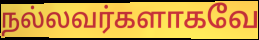
நல்லவர்களாகவே